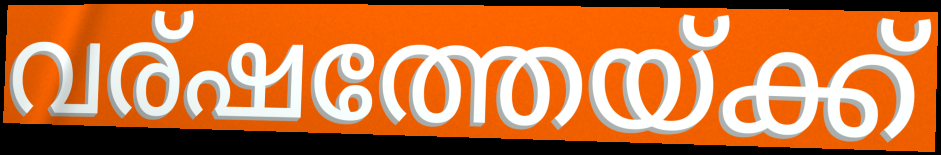
വര്ഷത്തേയ്ക്ക്